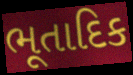
ભૂતાદિક